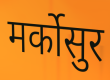
मर्कोसुर